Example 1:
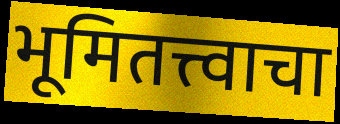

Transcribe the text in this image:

भूमितत्त्वाचा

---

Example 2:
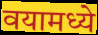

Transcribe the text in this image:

वयामध्ये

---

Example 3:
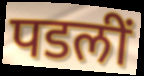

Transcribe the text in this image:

पडलीं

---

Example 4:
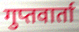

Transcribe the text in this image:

गुप्तवार्ता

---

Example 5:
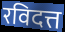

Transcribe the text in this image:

रविदत्त